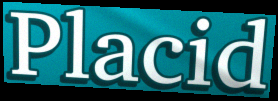
Placid